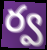
ర్వ